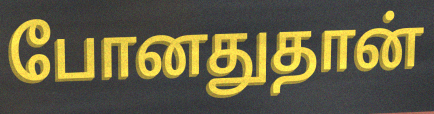
போனதுதான்